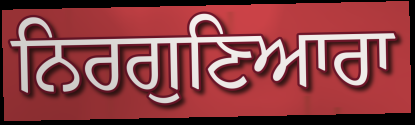
ਨਿਰਗੁਣਿਆਰਾ